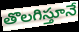
తొలగిస్తూనే